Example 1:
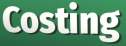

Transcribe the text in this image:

Costing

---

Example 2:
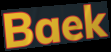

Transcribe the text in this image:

Baek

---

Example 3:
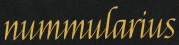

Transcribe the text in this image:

nummularius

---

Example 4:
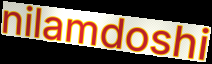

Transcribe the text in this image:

nilamdoshi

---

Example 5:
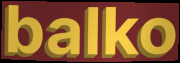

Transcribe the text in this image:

balko